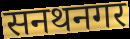
सनथनगर